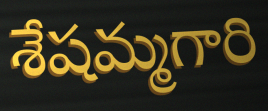
శేషమ్మగారి